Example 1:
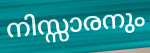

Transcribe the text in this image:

നിസ്സാരനും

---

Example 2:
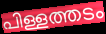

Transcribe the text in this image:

പിള്ളത്തടം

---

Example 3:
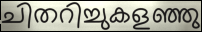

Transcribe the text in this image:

ചിതറിച്ചുകളഞ്ഞു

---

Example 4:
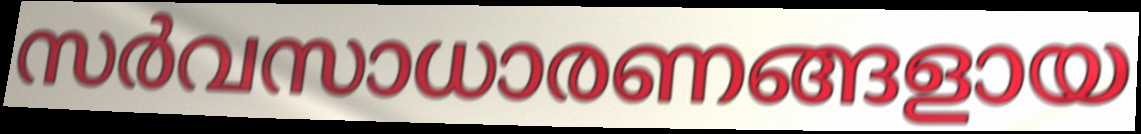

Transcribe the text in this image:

സർവസാധാരണങ്ങളായ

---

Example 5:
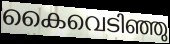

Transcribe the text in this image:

കൈവെടിഞ്ഞു